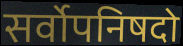
सर्वोपनिषदो